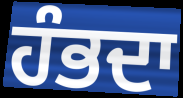
ਹੰਭਦਾ